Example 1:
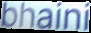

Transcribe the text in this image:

bhaini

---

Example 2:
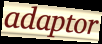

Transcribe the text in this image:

adaptor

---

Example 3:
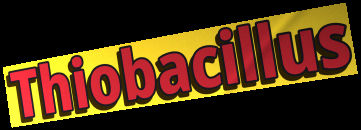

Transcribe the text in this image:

Thiobacillus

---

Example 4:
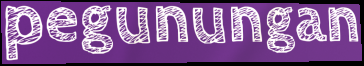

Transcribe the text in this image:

pegunungan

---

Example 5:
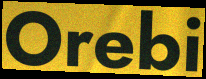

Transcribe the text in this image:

Orebi